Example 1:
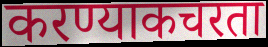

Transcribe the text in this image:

करण्याकचरता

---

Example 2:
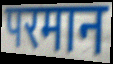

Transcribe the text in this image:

परमान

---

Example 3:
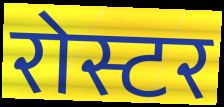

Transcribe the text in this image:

रोस्टर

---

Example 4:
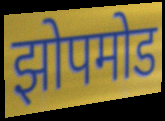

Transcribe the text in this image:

झोपमोड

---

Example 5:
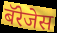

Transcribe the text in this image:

बॅरेजेस